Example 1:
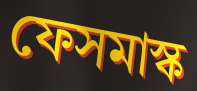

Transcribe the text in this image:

ফেসমাস্ক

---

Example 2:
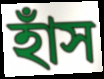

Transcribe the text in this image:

হাঁস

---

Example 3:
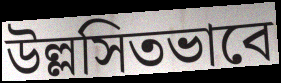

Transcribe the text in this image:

উল্লসিতভাবে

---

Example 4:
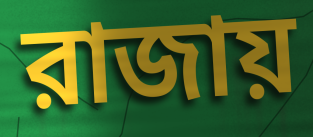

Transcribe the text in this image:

রাজায়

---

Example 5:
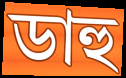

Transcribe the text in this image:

ডাহু